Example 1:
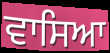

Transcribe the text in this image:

ਵਾਸਿਆ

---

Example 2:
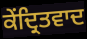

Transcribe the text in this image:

ਕੇਂਦ੍ਰਿਤਵਾਦ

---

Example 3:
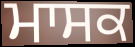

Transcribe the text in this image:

ਮਾਸਕ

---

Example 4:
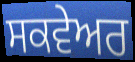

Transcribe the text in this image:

ਸਕਵੇਅਰ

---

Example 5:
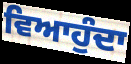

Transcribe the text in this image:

ਵਿਆਹੁੰਦਾ